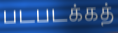
படபடக்கத்